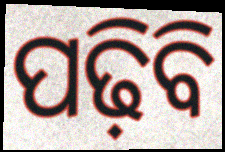
ପଢ଼ିବି